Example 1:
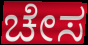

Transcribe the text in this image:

ಚೇಸ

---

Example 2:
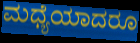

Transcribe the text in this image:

ಮಧ್ಯೆಯಾದರೂ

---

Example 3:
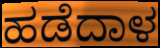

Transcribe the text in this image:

ಹಡೆದಾಳ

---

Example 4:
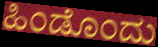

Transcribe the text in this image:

ಹಿಂಡೊಂದು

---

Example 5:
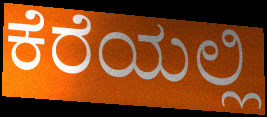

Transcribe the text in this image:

ಕೆರೆಯಲ್ಲಿ